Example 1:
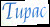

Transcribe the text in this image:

Tupac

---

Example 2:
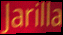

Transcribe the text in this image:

Jarilla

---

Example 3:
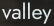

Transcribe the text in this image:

valley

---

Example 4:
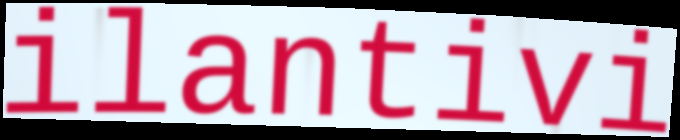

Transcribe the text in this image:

ilantivi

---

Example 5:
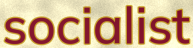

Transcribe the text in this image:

socialist